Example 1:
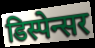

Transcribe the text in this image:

डिस्पेन्सर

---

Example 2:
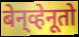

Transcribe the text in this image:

बेन्‌व्हेनूतो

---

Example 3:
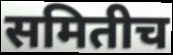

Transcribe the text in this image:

समितीच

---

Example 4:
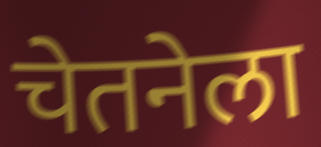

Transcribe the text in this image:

चेतनेला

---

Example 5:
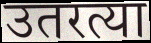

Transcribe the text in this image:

उतरत्या